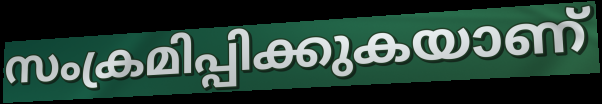
സംക്രമിപ്പിക്കുകയാണ്